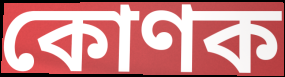
কোণক